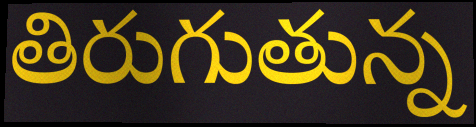
తిరుగుతున్న